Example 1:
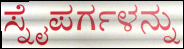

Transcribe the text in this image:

ಸ್ನೈಪರ್ಗಳನ್ನು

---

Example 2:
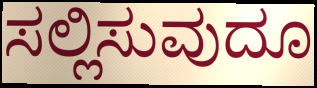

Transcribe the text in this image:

ಸಲ್ಲಿಸುವುದೂ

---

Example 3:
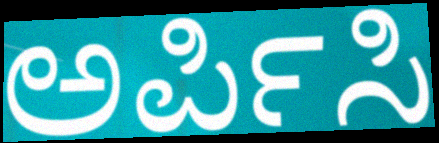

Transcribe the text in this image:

ಅರ್ಪಿಸಿ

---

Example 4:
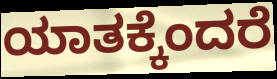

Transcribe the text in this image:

ಯಾತಕ್ಕೆಂದರೆ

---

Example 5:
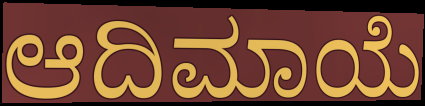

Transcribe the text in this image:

ಆದಿಮಾಯೆ